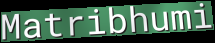
Matribhumi